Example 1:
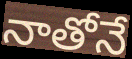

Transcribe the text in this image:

నాతోనే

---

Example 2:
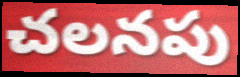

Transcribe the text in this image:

చలనపు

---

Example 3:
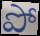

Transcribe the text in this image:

పో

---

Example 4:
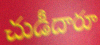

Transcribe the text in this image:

చుడీదారూ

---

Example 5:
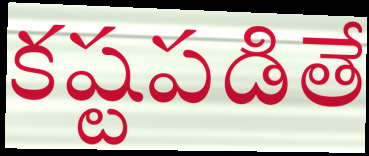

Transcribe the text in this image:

కష్టపడితే